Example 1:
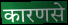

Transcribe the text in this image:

कारणसे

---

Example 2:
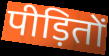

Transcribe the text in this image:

पीड़ितों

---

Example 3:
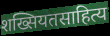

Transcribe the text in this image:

शख्सियतसाहित्य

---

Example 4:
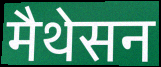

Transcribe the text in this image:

मैथेसन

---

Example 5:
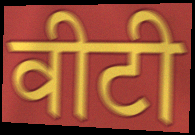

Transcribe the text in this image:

वीटी